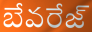
బేవరేజ్